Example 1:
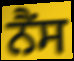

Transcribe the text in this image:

ਨੈਂਸ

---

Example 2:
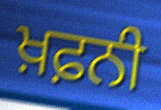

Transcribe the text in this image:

ਖ਼ਫ਼ਨੀ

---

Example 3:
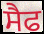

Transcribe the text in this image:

ਸੈਫ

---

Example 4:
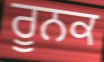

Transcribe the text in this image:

ਰੂਨਕ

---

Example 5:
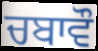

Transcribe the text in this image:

ਚਬਾਵੌ